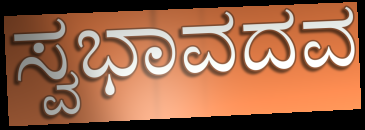
ಸ್ವಭಾವದವ